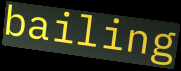
bailing